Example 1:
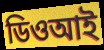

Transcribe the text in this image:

ডিওআই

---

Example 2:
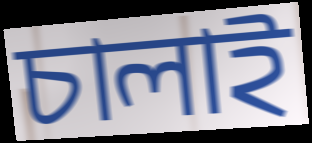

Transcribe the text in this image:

চালাই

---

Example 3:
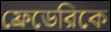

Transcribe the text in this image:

ফ্রেডেরিকে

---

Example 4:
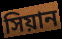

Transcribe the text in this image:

সিয়ান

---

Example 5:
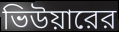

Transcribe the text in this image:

ভিউয়ারের